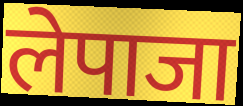
लेपाजा